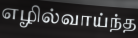
எழில்வாய்ந்த